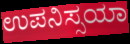
ಉಪನಿಸ್ಸಯಾ